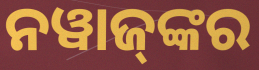
ନୱାଜ୍‍ଙ୍କର